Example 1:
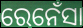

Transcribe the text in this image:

ରେନେଁସା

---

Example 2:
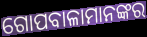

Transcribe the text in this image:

ଗୋପବାଳାମାନଙ୍କର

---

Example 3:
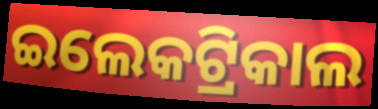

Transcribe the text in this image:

ଇଲେକଟ୍ରିକାଲ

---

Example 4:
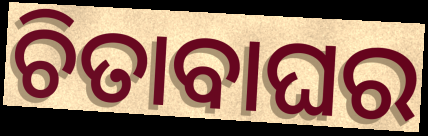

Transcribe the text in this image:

ଚିତାବାଘର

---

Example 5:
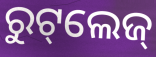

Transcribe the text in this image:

ରୁଟ୍‌ଲେଜ୍